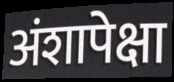
अंशापेक्षा